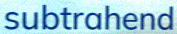
subtrahend